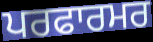
ਪਰਫਾਰਮਰ